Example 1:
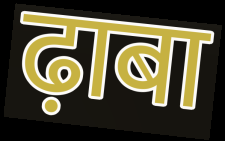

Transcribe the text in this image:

ढ़ाबा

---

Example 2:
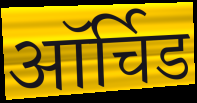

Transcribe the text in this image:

ऑर्चिड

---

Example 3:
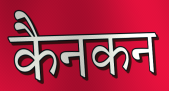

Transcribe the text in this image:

कैनकन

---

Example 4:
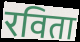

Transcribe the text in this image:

रविता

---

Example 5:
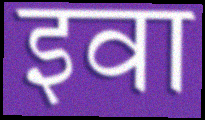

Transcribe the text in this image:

इवा